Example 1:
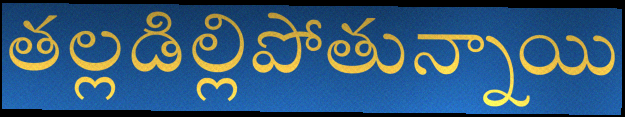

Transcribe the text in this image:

తల్లడిల్లిపోతున్నాయి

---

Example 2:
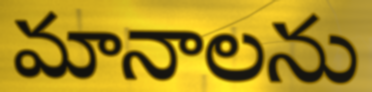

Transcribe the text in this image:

మానాలను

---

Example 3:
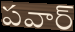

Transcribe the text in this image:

పవార్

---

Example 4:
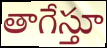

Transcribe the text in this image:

తాగేస్తూ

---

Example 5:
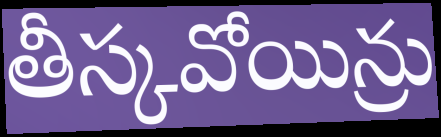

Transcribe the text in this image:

తీస్కవోయిన్రు